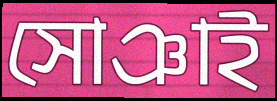
সোঞাই